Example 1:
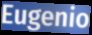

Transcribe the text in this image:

Eugenio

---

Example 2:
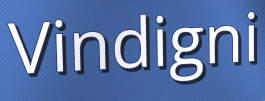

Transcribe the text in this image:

Vindigni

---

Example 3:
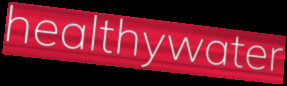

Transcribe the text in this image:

healthywater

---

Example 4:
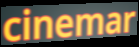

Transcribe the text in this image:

cinemar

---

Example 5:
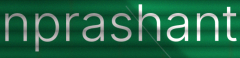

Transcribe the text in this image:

nprashant